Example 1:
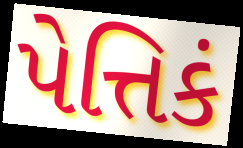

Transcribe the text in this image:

પેત્તિકં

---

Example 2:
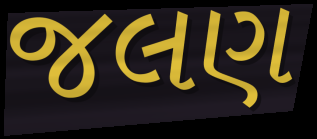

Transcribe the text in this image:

જલણ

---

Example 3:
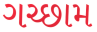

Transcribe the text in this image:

ગચ્છામ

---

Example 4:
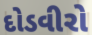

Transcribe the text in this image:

દોડવીરો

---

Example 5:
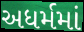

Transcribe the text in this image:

અધર્મમાં